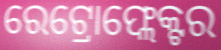
ରେଟ୍ରୋଫ୍ଲେକ୍ଟର